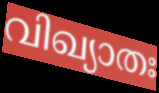
വിഖ്യാതഃ